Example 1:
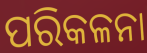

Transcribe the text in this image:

ପରିକଳନା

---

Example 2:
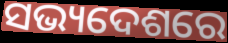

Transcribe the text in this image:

ସଭ୍ୟଦେଶରେ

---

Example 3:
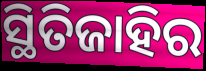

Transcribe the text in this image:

ସ୍ଥିତିଜାହିର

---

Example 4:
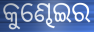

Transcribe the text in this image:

କୁଣ୍ଢେଇର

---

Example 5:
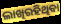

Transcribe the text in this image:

ଲାଖିରହିଥିବା